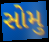
સોમુ